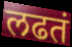
लढतं